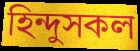
হিন্দুসকল